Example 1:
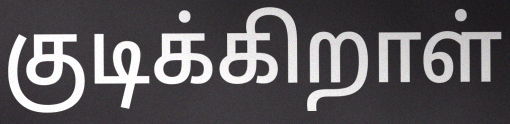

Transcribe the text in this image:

குடிக்கிறாள்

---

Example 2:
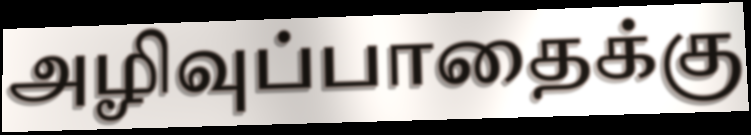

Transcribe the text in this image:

அழிவுப்பாதைக்கு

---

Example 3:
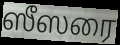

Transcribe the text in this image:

ஸீஸரை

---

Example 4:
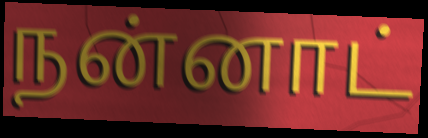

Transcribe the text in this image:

நன்னாட்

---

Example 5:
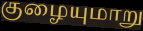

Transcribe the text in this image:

குழையுமாறு